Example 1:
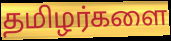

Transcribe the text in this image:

தமிழர்களை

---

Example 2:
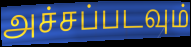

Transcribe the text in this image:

அச்சப்படவும்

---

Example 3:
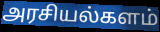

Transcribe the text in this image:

அரசியல்களம்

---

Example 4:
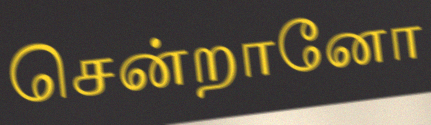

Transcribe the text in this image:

சென்றானோ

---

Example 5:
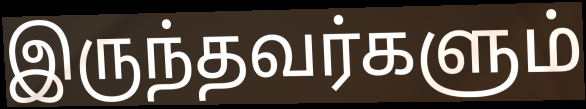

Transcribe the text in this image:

இருந்தவர்களும்